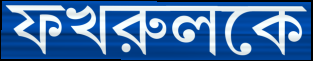
ফখরুলকে